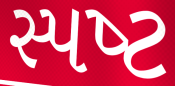
સ્પષ્‍ટ